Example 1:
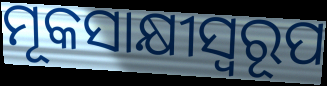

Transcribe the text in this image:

ମୂକସାକ୍ଷୀସ୍ୱରୂପ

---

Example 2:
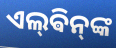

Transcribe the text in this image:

ଏଲ୍‌ଵିନ୍‌ଙ୍କ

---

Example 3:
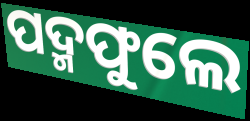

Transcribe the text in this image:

ପଦ୍ମଫୁଲେ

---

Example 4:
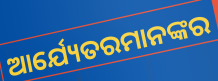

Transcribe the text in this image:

ଆର୍ଯ୍ୟେତରମାନଙ୍କର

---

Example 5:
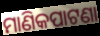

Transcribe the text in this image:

ମାଣିକପାଟଣା